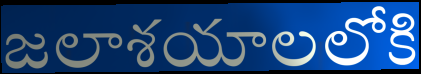
జలాశయాలలోకి